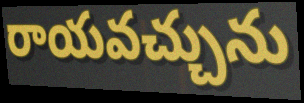
రాయవచ్చును